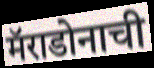
मॅराडोनाची